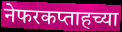
नेफरकप्ताहच्या